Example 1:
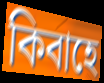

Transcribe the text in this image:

কিবাহে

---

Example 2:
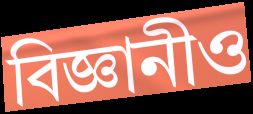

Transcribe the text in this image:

বিজ্ঞানীও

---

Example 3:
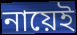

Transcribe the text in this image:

নায়েই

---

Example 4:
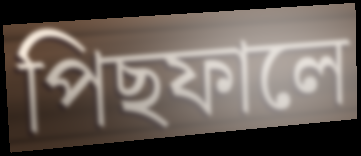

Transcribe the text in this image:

পিছফালে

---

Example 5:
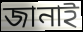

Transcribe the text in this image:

জানাই